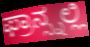
ಫ್ರಾನ್ಸ್ನಲ್ಲಿ